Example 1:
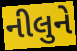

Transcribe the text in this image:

નીલુને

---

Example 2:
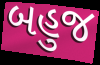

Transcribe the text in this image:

બહુજ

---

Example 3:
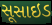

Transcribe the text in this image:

સૂસાઇડ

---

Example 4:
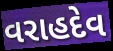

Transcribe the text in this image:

વરાહદેવ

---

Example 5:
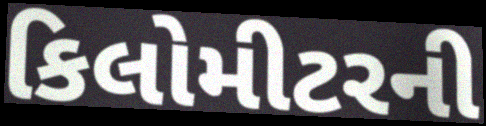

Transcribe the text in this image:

કિલોમીટરની